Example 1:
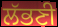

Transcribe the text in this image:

ਲੱਭਣੀ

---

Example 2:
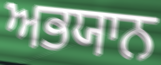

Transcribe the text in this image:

ਅਭਯਾਨ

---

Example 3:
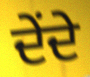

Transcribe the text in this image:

ਦੇਂਦੇ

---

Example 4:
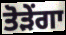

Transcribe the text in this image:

ਤੋੜੇਂਗਾ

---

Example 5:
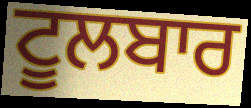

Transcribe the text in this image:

ਟੂਲਬਾਰ